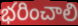
భరించాలి